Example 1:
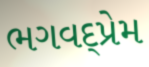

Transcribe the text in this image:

ભગવદ્પ્રેમ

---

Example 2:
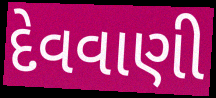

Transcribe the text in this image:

દેવવાણી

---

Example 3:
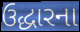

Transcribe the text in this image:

ઉદ્ધારના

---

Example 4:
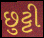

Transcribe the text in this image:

છુટ્ટી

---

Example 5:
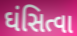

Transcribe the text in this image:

ઘંસિત્વા